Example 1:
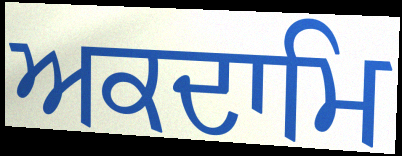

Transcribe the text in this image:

ਅਕਦਾਮਿ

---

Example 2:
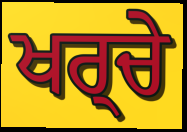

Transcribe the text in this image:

ਖਰ੍ਚੇ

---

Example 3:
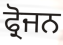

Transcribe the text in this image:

ਫ੍ਰੋਜਨ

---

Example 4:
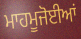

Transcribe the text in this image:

ਮਾਹਮੂਜੋਈਆਂ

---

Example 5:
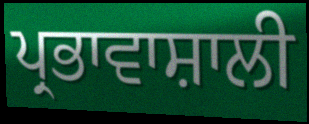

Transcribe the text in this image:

ਪ੍ਰਭਾਵਾਸ਼ਾਲੀ